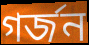
গর্জন